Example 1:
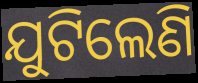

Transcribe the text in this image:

ଯୁଟିଲେଣି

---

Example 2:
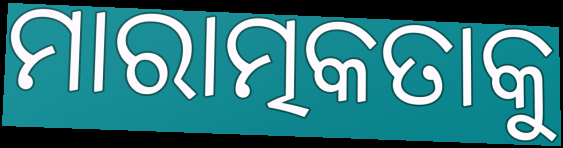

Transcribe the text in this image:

ମାରାତ୍ମକତାକୁ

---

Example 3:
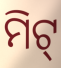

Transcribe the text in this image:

ମିଟ୍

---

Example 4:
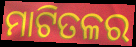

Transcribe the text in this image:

ମାଟିତଳର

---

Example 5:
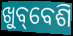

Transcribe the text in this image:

ଖୁବ୍‌ବେଶି